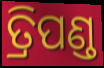
ତ୍ରିପଣ୍ଡ